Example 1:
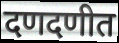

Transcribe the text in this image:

दणदणीत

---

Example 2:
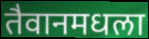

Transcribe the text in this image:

तैवानमधला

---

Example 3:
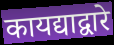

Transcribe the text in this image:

कायद्याद्वारे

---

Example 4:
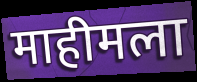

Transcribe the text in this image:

माहीमला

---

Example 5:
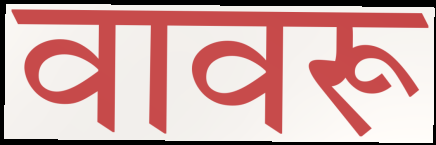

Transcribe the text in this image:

वावरू